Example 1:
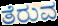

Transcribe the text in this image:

ತೆರುವ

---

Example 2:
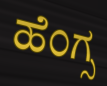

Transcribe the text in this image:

ಹೆಂಗ್ಸ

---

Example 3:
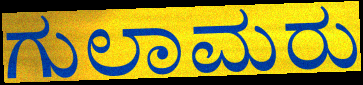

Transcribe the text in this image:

ಗುಲಾಮರು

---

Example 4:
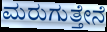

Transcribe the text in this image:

ಮರುಗುತ್ತೇನೆ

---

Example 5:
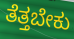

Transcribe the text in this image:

ತೆತ್ತಬೇಕು